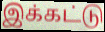
இக்கட்டு